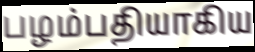
பழம்பதியாகிய